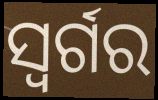
ସ୍ୱର୍ଗର